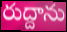
రుద్దాను